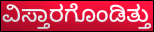
ವಿಸ್ತಾರಗೊಂಡಿತ್ತು